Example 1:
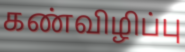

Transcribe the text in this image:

கண்விழிப்பு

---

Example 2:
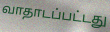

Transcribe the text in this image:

வாதாடப்பட்டது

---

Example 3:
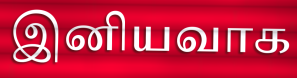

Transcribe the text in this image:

இனியவாக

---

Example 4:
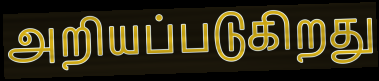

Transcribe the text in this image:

அறியப்படுகிறது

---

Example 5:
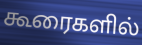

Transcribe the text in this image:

கூரைகளில்